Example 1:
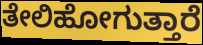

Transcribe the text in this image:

ತೇಲಿಹೋಗುತ್ತಾರೆ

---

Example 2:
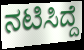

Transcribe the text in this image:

ನಟಿಸಿದ್ದೆ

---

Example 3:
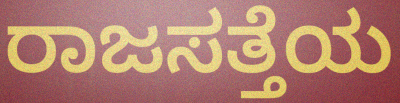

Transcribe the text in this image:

ರಾಜಸತ್ತೆಯ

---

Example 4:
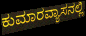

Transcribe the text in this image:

ಕುಮಾರವ್ಯಾಸನಲ್ಲಿ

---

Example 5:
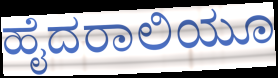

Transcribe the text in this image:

ಹೈದರಾಲಿಯೂ